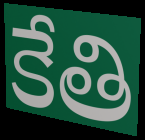
కేతి